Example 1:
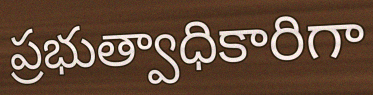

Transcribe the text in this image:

ప్రభుత్వాధికారిగా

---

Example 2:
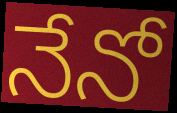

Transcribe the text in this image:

నేనో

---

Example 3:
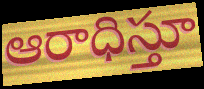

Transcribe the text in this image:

ఆరాధిస్తూ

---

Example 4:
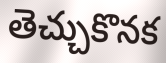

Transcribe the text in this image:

తెచ్చుకొనక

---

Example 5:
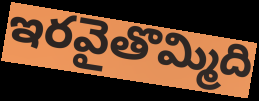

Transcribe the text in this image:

ఇరవైతొమ్మిది